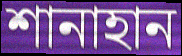
শানাহান